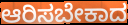
ಆರಿಸಬೇಕಾದ